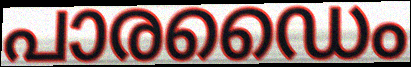
പാരഡൈം